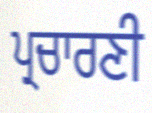
ਪ੍ਰਚਾਰਣੀ